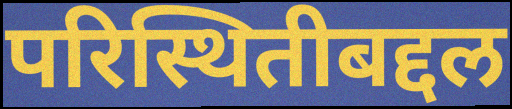
परिस्थितीबद्दल